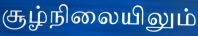
சூழ்நிலையிலும்